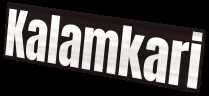
Kalamkari